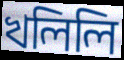
খলিলি